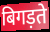
बिगड़ते